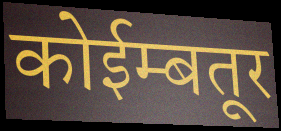
कोईम्बतूर